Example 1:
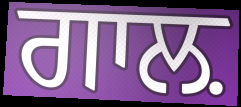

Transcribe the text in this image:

ਗਾਲ਼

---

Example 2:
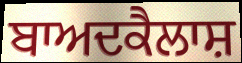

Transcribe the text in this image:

ਬਾਅਦਕੈਲਾਸ਼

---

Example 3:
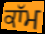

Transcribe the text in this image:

ਕਾੱਮ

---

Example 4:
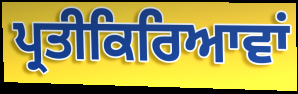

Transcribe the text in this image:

ਪ੍ਰਤੀਕਿਰਿਆਵਾਂ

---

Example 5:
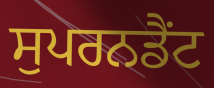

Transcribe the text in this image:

ਸੁਪਰਨਡੈਂਟ